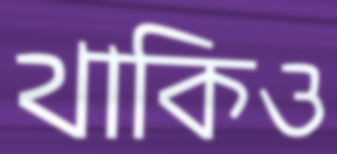
থাকিও